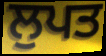
ਲੁਪਤ